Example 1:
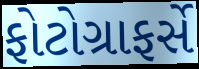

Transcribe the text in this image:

ફોટોગ્રાફર્સે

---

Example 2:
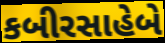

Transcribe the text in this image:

કબીરસાહેબે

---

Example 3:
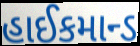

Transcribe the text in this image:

હાઈકમાન્ડ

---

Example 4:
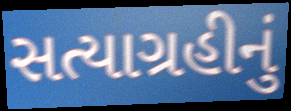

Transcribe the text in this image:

સત્યાગ્રહીનું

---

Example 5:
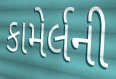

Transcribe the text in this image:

કામેર્લની